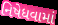
નિષેધવામાં